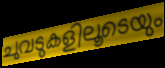
ചുവടുകളിലൂടെയും